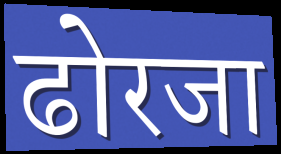
ढोरजा